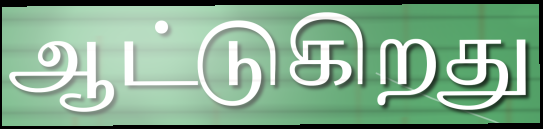
ஆட்டுகிறது